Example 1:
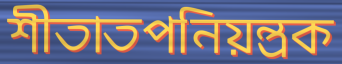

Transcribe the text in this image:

শীতাতপনিয়ন্ত্রক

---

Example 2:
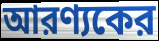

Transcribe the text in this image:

আরণ্যকের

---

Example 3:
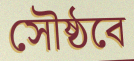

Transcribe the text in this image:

সৌষ্ঠবে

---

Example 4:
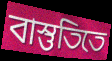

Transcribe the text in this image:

বাস্তুতিতে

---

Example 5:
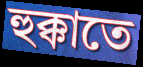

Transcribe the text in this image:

হুক্কাতে